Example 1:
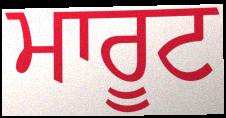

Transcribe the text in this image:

ਮਾਰੂਟ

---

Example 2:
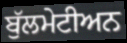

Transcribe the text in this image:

ਬੁੱਲਮੇਟੀਅਨ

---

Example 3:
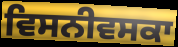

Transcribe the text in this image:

ਵਿਸਨੀਵਸਕਾ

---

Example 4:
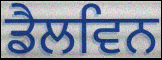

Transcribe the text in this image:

ਡੈਲਵਿਨ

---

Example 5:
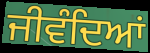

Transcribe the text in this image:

ਜੀਵੰਦਿਆਂ